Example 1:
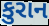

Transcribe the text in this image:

કુરાન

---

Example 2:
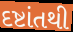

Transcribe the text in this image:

દષ્ટાંતથી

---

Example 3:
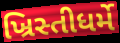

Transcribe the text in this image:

ખ્રિસ્તીધર્મે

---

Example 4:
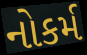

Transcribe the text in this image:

નોકર્મ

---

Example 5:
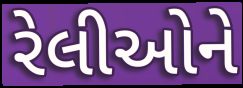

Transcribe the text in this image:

રેલીઓને